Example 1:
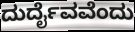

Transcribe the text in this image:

ದುರ್ದೈವವೆಂದು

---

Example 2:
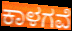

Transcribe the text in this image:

ಕಾಳಗವೆ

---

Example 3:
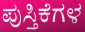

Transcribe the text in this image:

ಪುಸ್ತಿಕೆಗಳ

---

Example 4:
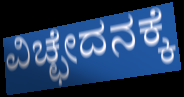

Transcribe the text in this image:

ವಿಚ್ಛೇದನಕ್ಕೆ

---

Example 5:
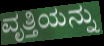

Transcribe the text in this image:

ವೃತ್ತಿಯನ್ನು